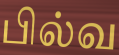
பில்வ